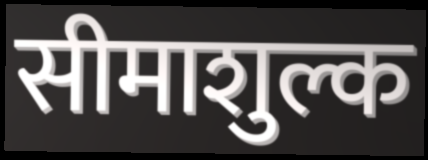
सीमाशुल्क